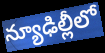
న్యూఢిల్లీలో